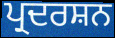
ਪ੍ਰਦਰਸ਼ਨ